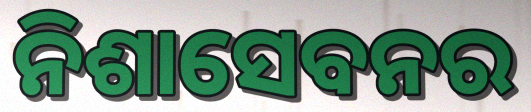
ନିଶାସେବନର